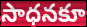
సాధనకూ